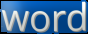
word